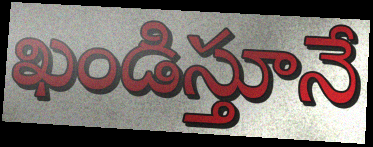
ఖండిస్తూనే